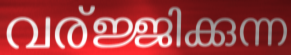
വര്ജ്ജിക്കുന്ന